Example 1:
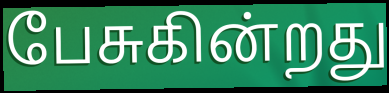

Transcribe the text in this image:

பேசுகின்றது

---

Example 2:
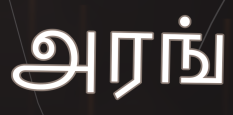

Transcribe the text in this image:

அரங்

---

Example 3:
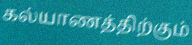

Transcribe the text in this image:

கல்யாணத்திற்கும்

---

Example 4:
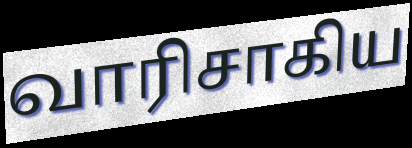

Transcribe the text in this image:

வாரிசாகிய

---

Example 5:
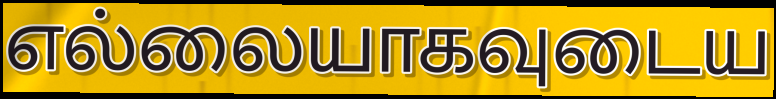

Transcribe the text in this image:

எல்லையாகவுடைய